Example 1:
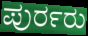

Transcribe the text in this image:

ಪುರ್ರರು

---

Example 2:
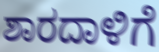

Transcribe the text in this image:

ಶಾರದಾಳಿಗೆ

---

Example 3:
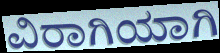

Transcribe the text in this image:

ವಿರಾಗಿಯಾಗಿ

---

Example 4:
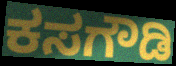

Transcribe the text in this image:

ಕಸಗೌಡಿ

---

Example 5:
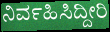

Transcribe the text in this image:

ನಿರ್ವಹಿಸಿದ್ದೀರಿ